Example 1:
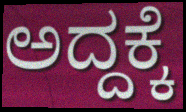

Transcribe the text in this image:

ಅದ್ದಕ್ಕೆ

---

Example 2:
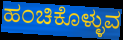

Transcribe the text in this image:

ಹಂಚಿಕೊಳ್ಳುವ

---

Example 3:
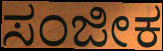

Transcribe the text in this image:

ಸಂಜೀಕ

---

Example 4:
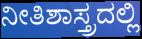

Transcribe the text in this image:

ನೀತಿಶಾಸ್ತ್ರದಲ್ಲಿ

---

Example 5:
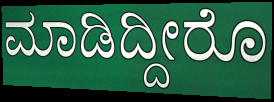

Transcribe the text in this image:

ಮಾಡಿದ್ದೀರೊ